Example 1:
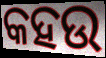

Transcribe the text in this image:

କହଉ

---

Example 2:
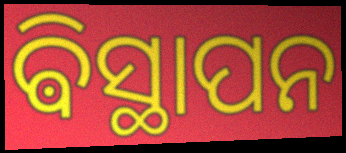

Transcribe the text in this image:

ଵିସ୍ଥାପନ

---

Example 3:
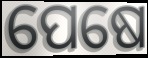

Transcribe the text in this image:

ପେଷେ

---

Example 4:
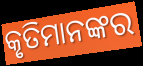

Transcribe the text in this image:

କୃତିମାନଙ୍କର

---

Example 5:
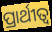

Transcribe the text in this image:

ପ୍ରାର୍ଥୀତ୍ଵ